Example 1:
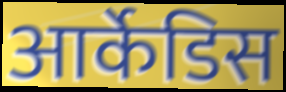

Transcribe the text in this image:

आर्केडिस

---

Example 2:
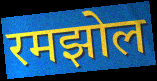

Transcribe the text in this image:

रमझोल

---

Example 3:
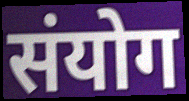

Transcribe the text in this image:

संयोग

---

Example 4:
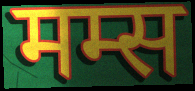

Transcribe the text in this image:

मम्स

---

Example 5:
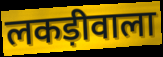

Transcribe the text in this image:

लकड़ीवाला